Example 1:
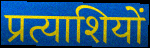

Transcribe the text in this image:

प्रत्याशियों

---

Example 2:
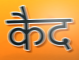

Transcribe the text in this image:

कैद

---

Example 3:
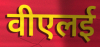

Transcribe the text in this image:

वीएलई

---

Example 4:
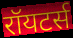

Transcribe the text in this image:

रॉयटर्स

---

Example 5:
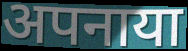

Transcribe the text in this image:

अपनाया